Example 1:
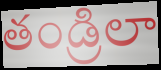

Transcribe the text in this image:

తండ్రిలా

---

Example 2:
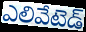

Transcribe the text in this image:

ఎలివేటెడ్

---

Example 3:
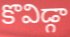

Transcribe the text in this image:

కొవిడ్గా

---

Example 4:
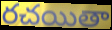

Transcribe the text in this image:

రచయితా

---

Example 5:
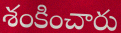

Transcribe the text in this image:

శంకించారు